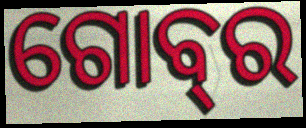
ଗୋବ୍‌ର